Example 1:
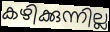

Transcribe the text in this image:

കഴിക്കുന്നില്ല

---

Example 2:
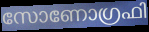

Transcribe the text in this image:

സോണോഗ്രഫി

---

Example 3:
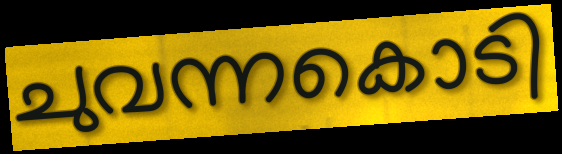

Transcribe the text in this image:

ചുവന്നകൊടി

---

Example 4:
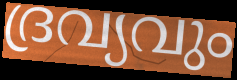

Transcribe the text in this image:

ദ്രവ്യവും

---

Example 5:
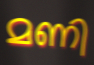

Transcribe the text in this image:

മണി